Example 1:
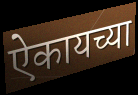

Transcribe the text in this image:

ऐकायच्या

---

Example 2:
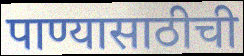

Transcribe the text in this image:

पाण्यासाठीची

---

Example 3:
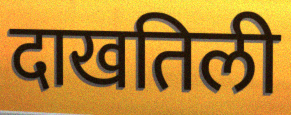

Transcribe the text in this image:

दाखतिली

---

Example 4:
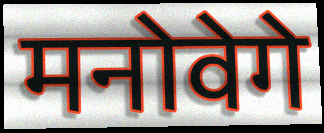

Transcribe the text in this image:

मनोवेगे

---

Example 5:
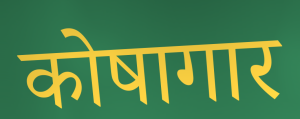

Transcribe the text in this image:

कोषागार